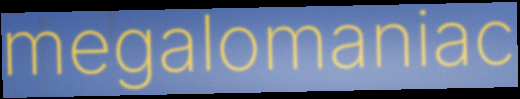
megalomaniac